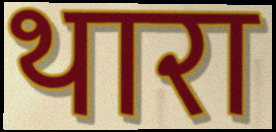
थारा